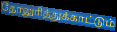
தோலுரித்துக்காட்டும்